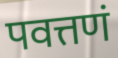
पवत्तणं